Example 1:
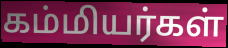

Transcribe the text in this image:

கம்மியர்கள்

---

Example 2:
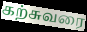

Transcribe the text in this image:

கற்சுவரை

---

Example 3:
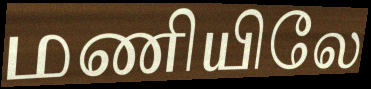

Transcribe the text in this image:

மணியிலே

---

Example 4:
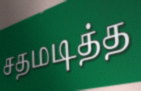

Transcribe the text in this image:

சதமடித்த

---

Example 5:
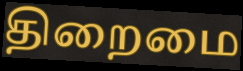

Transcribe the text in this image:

திறைமை